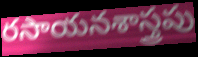
రసాయనశాస్త్రపు